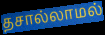
தசால்லாமல்